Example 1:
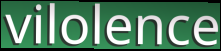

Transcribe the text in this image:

vilolence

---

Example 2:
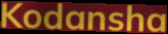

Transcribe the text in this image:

Kodansha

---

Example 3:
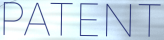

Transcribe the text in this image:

PATENT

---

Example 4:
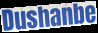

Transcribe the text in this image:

Dushanbe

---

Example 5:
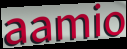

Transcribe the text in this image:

aamio